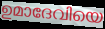
ഉമാദേവിയെ